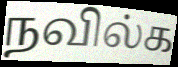
நவில்க